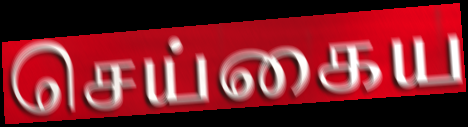
செய்கைய